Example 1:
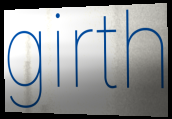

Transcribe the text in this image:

girth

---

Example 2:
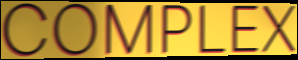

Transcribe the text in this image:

COMPLEX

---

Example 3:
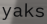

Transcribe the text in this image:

yaks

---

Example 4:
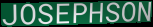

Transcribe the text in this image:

JOSEPHSON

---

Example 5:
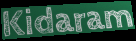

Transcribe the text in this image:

Kidaram